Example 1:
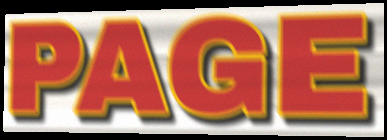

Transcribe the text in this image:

PAGE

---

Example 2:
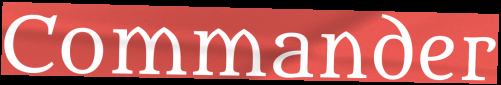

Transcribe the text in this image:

Commander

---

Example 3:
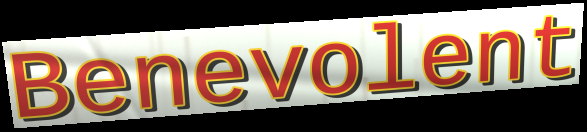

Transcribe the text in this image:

Benevolent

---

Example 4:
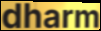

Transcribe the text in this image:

dharm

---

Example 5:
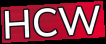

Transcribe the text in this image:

HCW